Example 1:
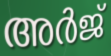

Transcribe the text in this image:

അർജ്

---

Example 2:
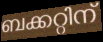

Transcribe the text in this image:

ബക്കറ്റിന്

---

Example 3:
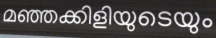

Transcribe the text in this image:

മഞ്ഞക്കിളിയുടെയും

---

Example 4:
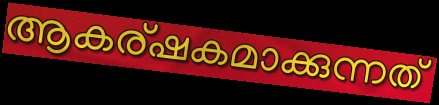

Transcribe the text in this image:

ആകര്ഷകമാക്കുന്നത്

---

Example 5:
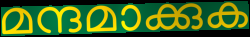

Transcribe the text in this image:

മന്ദമാക്കുക